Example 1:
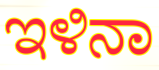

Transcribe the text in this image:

ಇಳಿನಾ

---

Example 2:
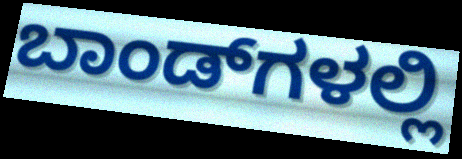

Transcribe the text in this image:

ಬಾಂಡ್‌ಗಳಲ್ಲಿ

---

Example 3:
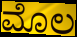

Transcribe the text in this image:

ಮೊಲ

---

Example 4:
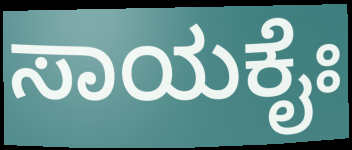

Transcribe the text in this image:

ಸಾಯಕೈಃ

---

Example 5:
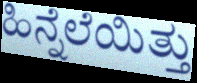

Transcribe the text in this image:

ಹಿನ್ನೆಲೆಯಿತ್ತು